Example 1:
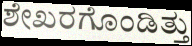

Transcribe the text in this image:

ಶೇಖರಗೊಂಡಿತ್ತು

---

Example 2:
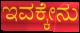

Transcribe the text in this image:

ಇವಕ್ಕೇನು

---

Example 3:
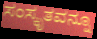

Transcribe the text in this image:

ಸಂಸ್ಕೃತವನ್ನೂ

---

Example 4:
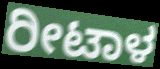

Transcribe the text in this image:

ರೀಟಾಳ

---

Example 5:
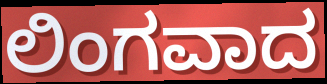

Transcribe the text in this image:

ಲಿಂಗವಾದ